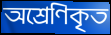
অশ্রেণিকৃত